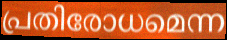
പ്രതിരോധമെന്ന